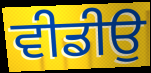
ਵੀਡੀਉ